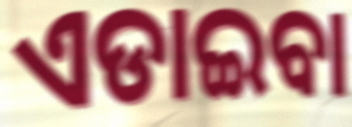
ଏଡାଇବା